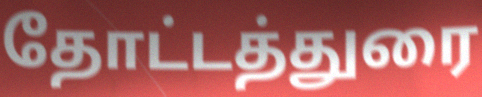
தோட்டத்துரை